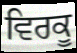
ਵਿਰਕੂ